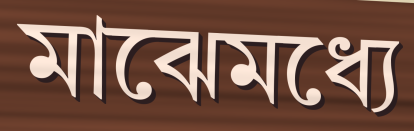
মাঝেমধ্যে